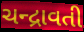
ચન્દ્રાવતી